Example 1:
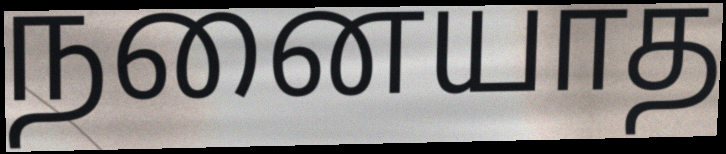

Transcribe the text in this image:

நனையாத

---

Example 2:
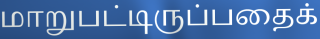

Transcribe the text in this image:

மாறுபட்டிருப்பதைக்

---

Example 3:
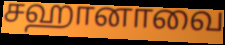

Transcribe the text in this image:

சஹானாவை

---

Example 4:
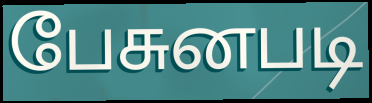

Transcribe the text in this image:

பேசுனபடி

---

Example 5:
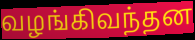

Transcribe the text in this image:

வழங்கிவந்தன